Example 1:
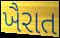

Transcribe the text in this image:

ખૈરાત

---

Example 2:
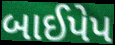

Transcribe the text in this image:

બાઈપેપ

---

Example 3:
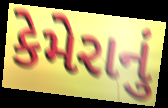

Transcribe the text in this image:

કેમેરાનું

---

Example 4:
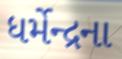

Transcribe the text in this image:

ધર્મેન્દ્રના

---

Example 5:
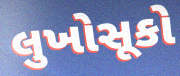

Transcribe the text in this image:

લુખોસૂકો